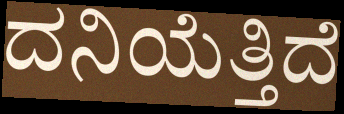
ದನಿಯೆತ್ತಿದೆ